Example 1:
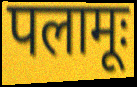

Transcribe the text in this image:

पलामूः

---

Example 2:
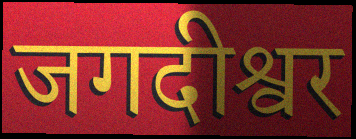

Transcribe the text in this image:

जगदीश्वर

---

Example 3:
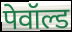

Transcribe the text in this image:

पेवॉल्ड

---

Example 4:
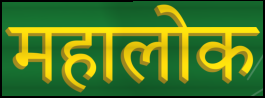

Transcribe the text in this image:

महालोक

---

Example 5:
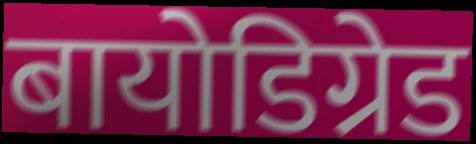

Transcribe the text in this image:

बायोडिग्रेड